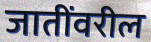
जातींवरील